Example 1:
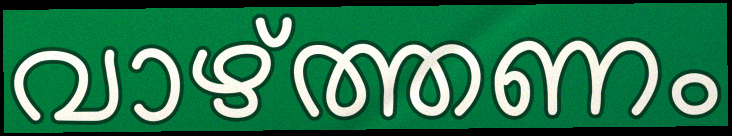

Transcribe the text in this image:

വാഴ്ത്തണം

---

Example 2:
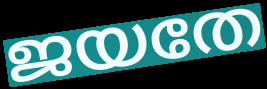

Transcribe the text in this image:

ജയതേ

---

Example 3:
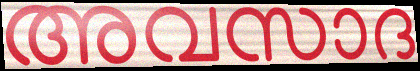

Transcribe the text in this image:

അവസാദ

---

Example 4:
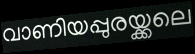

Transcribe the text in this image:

വാണിയപ്പുരയ്ക്കലെ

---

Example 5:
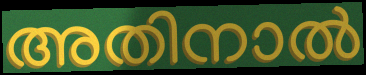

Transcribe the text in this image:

അതിനാൽ